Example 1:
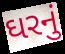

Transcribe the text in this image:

ઘરનું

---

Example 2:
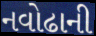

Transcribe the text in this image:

નવોઢાની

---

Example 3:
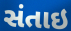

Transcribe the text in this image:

સંતાઇ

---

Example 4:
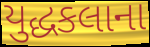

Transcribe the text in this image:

યુદ્ધકલાના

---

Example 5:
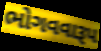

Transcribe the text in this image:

ભોગવવારૂપ